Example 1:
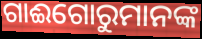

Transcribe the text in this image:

ଗାଈଗୋରୁମାନଙ୍କ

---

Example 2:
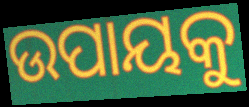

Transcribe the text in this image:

ଉପାୟକୁ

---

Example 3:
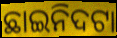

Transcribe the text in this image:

ଛାଇନିଦଟା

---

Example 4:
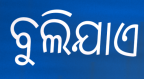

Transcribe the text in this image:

ବୁଲିଯାଏ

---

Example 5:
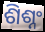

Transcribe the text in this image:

ଶିଶ୍ନଂ